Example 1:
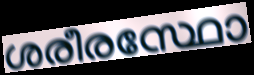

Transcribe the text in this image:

ശരീരസ്ഥോ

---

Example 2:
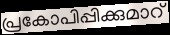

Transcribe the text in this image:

പ്രകോപിപ്പിക്കുമാറ്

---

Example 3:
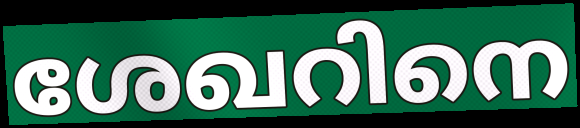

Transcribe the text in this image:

ശേഖറിനെ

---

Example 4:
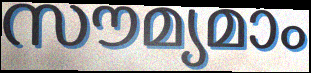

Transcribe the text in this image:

സൗമ്യമാം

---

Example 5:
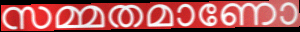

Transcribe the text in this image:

സമ്മതമാണോ